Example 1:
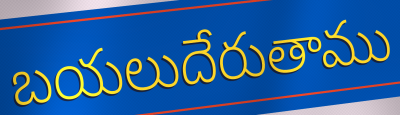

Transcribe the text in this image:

బయలుదేరుతాము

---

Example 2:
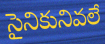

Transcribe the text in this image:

సైనికునివలే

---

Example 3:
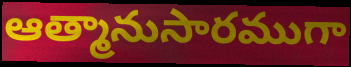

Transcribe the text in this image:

ఆత్మానుసారముగా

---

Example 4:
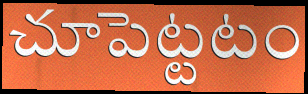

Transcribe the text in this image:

చూపెట్టటం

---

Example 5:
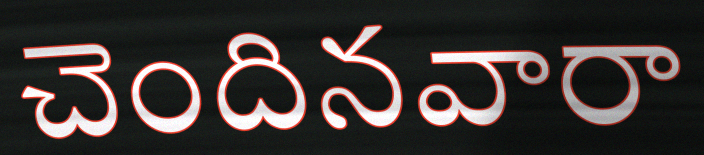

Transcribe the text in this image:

చెందినవారా